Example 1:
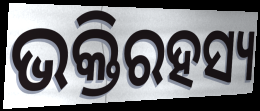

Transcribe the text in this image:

ଭକ୍ତିରହସ୍ୟ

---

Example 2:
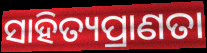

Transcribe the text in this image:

ସାହିତ୍ୟପ୍ରାଣତା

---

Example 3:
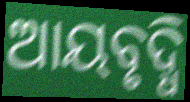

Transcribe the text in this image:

ଆୟବୃଦ୍ଧି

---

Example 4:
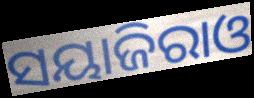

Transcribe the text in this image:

ସୟାଜିରାଓ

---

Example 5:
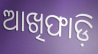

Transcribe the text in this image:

ଆଖିଫାଡ଼ି